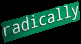
radically